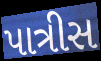
પાત્રીસ